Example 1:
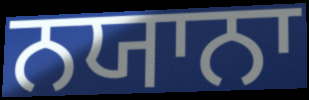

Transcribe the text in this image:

ਨਯਾਨਾ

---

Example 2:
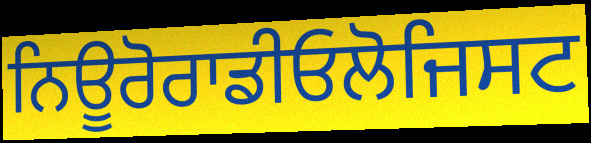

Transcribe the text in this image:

ਨਿਊਰੋਰਾਡੀਓਲੋਜਿਸਟ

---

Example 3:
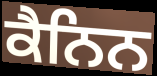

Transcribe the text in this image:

ਕੈਨਿਨ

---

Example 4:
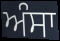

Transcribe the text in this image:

ਅੰਸਾ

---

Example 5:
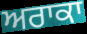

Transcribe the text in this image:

ਅਰਾਕਾ